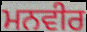
ਮਨਵੀਰ